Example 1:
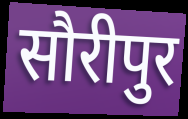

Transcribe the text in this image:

सौरीपुर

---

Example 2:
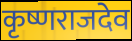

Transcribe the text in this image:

कृष्णराजदेव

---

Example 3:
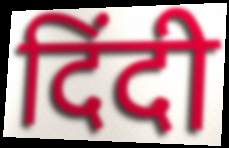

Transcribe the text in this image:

दिंदी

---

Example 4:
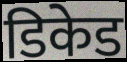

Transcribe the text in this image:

डिकेड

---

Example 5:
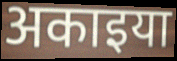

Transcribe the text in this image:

अकाइया